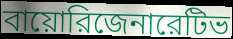
বায়োরিজেনারেটিভ